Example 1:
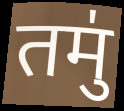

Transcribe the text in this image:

तमु॑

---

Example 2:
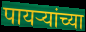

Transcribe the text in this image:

पायर्‍यांच्या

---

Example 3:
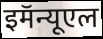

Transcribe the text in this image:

इमॅन्यूएल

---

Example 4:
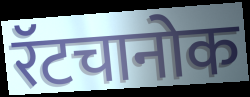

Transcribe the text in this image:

रॅटचानोक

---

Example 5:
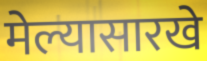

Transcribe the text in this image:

मेल्यासारखे